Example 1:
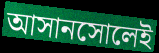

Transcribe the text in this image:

আসানসোলেই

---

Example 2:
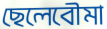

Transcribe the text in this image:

ছেলেবৌমা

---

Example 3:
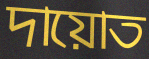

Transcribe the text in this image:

দায়োত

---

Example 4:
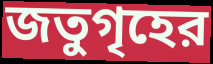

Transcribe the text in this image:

জতুগৃহের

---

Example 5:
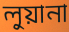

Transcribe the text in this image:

লুয়ানা